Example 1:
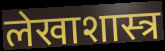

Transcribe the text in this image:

लेखाशास्त्र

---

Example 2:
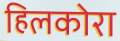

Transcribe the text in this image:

हिलकोरा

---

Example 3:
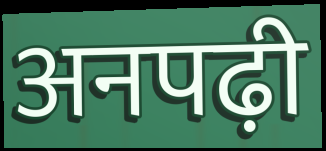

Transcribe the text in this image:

अनपढ़ी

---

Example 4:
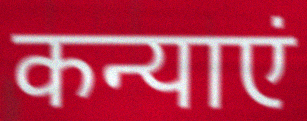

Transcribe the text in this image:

कन्याएं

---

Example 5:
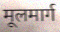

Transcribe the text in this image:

मूलमार्ग